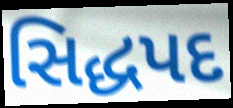
સિદ્ધપદ